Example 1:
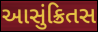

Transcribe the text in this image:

આસુંક્રિતસ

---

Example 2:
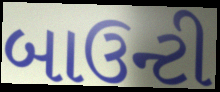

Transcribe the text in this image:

બાઉન્ટી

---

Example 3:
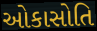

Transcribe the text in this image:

ઓકાસોતિ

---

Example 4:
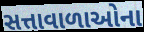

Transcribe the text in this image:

સત્તાવાળાઓના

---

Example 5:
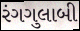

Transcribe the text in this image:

રંગગુલાબી